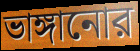
ভাঙ্গানোর